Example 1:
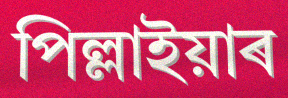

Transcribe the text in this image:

পিল্লাইয়াৰ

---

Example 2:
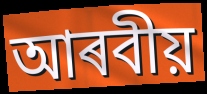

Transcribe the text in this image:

আৰবীয়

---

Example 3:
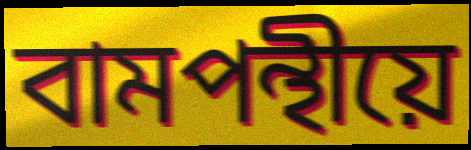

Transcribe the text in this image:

বামপন্থীয়ে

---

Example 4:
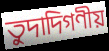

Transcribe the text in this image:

তুদাদিগণীয়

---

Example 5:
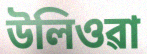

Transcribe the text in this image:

উলিওৱা